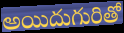
అయిదుగురితో